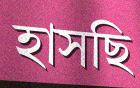
হাসছি